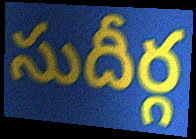
సుదీర్గ